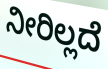
ನೀರಿಲ್ಲದೆ